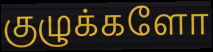
குழுக்களோ